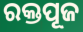
ରକ୍ତପୂଜ